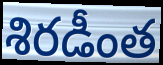
శిరడీంత